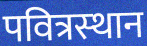
पवित्रस्‍थान